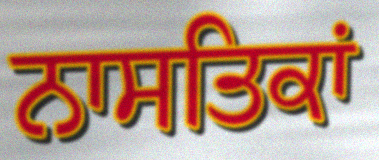
ਨਾਸਤਿਕਾਂ